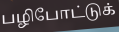
பழிபோட்டுக்